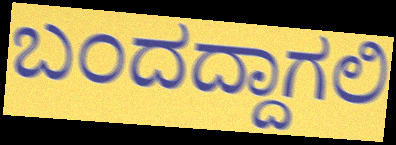
ಬಂದದ್ದಾಗಲಿ